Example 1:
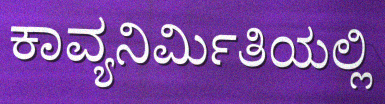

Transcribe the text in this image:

ಕಾವ್ಯನಿರ್ಮಿತಿಯಲ್ಲಿ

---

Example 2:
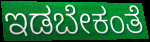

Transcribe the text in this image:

ಇಡಬೇಕಂತೆ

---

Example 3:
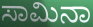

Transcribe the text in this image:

ಸಾಮಿನಾ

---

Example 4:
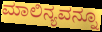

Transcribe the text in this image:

ಮಾಲಿನ್ಯವನ್ನೂ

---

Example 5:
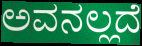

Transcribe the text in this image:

ಅವನಲ್ಲದೆ